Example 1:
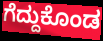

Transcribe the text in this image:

ಗೆದ್ದುಕೊಂಡ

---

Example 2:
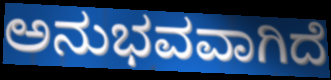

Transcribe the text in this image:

ಅನುಭವವಾಗಿದೆ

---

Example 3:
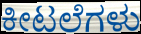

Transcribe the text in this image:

ಕೀಟಲೆಗಳು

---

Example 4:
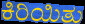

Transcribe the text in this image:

ಕಿರಿಯಿತು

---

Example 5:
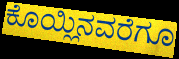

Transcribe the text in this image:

ಕೊಯ್ಲಿನವರೆಗೂ